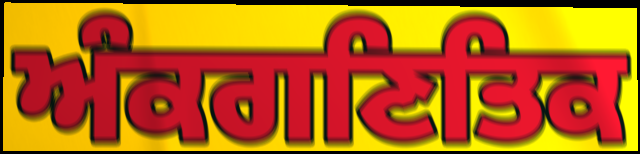
ਅੰਕਗਣਿਤਿਕ